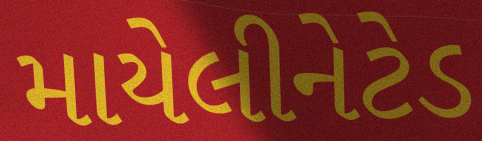
માયેલીનેટેડ